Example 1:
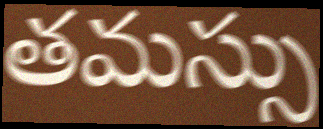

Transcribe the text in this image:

తమస్సు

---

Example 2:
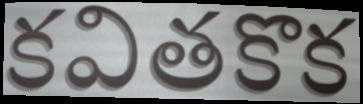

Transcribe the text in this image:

కవితకొక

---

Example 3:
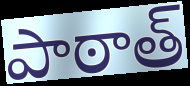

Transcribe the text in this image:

పాఠాత్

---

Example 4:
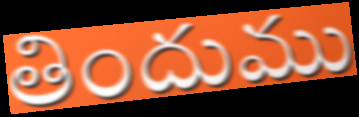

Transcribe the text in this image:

తిందుము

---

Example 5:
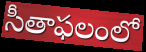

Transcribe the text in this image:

సీతాఫలంలో